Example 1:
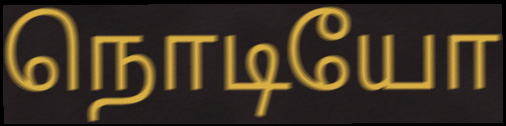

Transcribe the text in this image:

நொடியோ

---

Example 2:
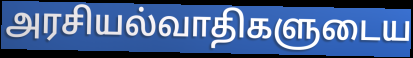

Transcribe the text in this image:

அரசியல்வாதிகளுடைய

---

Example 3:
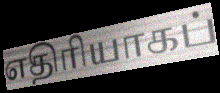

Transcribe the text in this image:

எதிரியாகப்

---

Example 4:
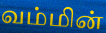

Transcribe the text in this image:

வம்மின்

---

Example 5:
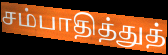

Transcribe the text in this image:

சம்பாதித்துத்